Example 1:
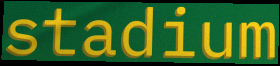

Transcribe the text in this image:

stadium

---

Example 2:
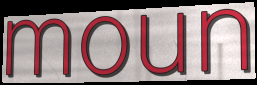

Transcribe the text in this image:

moun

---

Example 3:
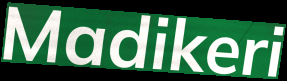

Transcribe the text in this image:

Madikeri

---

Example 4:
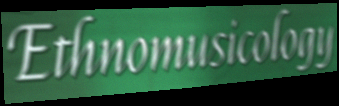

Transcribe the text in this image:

Ethnomusicology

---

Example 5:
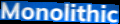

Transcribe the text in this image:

Monolithic